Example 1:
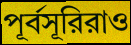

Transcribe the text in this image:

পূর্বসূরিরাও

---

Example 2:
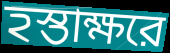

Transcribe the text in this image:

হস্তাক্ষরে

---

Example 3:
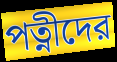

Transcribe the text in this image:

পত্নীদের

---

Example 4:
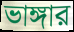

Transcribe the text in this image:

ভাঙ্গার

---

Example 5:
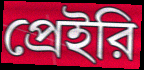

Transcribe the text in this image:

প্রেইরি